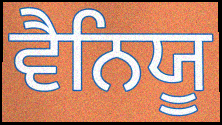
ਵੈਨਿਯੂ